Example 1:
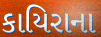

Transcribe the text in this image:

કાયિરાના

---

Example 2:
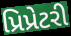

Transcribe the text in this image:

પ્રિપ્રેટરી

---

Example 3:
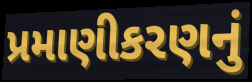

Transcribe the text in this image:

પ્રમાણીકરણનું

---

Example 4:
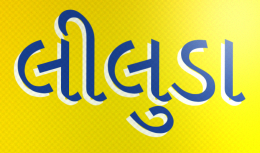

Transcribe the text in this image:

લીલુડા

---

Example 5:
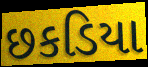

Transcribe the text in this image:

છકડિયા